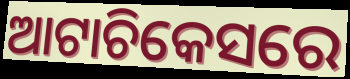
ଆଟାଚିକେସରେ